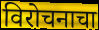
विरोचनाचा